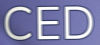
CED